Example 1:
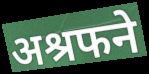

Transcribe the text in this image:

अश्रफने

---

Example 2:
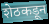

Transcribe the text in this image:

शेठकडून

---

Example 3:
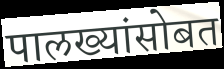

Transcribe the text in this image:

पालख्यांसोबत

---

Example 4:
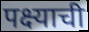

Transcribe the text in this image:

पक्ष्याची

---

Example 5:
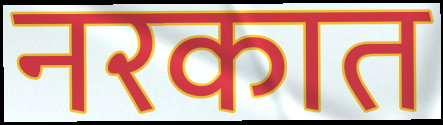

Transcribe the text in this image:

नरकात